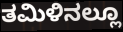
ತಮಿಳಿನಲ್ಲೂ